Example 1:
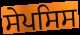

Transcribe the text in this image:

ਸੇਪਸਿਸ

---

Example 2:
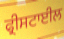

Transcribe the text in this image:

ਫ੍ਰੀਸਟਾਈਲ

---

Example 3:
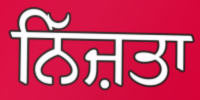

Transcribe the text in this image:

ਨਿੱਜ਼ਤਾ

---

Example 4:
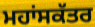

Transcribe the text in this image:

ਮਹਾਂਸਕੱਤਰ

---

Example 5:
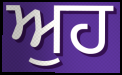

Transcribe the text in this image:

ਅੁਹ